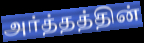
அர்த்தத்தின்